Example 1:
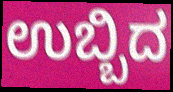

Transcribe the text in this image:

ಉಬ್ಬಿದ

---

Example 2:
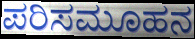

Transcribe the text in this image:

ಪರಿಸಮೂಹನ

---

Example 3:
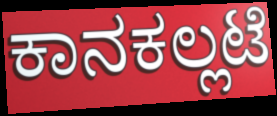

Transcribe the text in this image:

ಕಾನಕಲ್ಲಟೆ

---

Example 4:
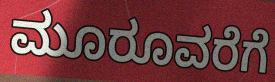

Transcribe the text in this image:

ಮೂರೂವರೆಗೆ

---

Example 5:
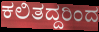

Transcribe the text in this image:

ಕಲಿತದ್ದರಿಂದ